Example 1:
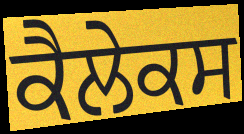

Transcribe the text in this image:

ਕੈਲੇਕਸ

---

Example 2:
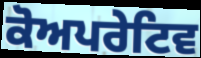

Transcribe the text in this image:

ਕੋਅਪਰੇਟਿਵ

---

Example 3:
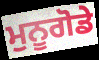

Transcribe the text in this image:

ਮੁਨੂਗੋਡੇ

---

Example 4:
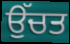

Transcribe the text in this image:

ਉੱਚਤ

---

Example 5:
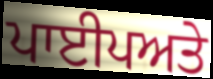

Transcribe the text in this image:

ਪਾਈਪਅਤੇ